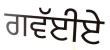
ਗਵੱਈਏ